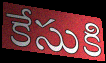
కేసుకి